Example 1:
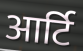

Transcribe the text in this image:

आर्टि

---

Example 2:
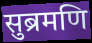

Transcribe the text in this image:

सुब्रमणि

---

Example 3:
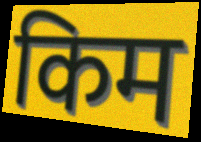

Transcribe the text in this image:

किम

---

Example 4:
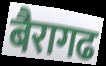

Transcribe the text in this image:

बैरागढ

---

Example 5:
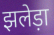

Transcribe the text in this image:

झलेड़ा